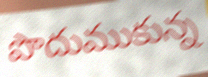
పొదుముకున్న